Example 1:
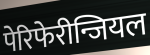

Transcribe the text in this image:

पेरिफेरीन्जियल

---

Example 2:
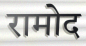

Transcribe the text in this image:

रामोद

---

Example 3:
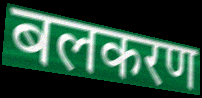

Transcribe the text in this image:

बलकरण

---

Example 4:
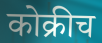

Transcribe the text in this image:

कोक्रीच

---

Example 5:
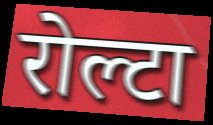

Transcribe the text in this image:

रोल्टा